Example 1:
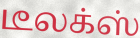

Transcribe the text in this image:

டீலக்ஸ்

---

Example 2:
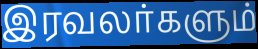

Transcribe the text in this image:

இரவலர்களும்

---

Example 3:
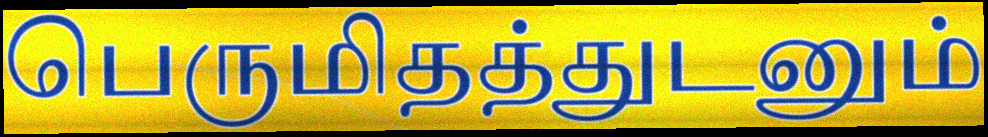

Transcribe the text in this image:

பெருமிதத்துடனும்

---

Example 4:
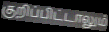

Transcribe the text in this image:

குறிப்பிட்டாலும்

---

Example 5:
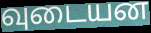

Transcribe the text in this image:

வுடையன